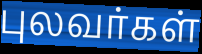
புலவர்கள்